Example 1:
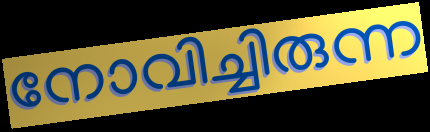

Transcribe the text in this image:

നോവിച്ചിരുന്ന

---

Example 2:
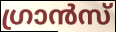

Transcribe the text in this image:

ഗ്രാൻസ്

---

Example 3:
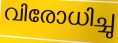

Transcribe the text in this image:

വിരോധിച്ചു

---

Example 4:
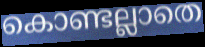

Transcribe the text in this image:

കൊണ്ടല്ലാതെ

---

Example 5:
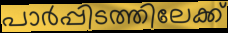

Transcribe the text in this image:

പാർപ്പിടത്തിലേക്ക്